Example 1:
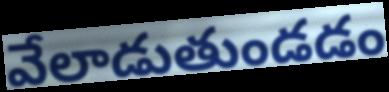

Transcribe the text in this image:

వేలాడుతుండడం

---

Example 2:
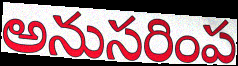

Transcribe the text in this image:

అనుసరింప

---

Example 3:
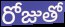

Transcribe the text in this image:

రోజుతో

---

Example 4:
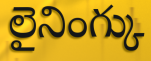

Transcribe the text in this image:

లైనింగ్కు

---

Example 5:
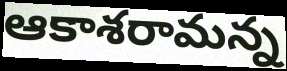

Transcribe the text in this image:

ఆకాశరామన్న